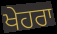
ਖੇਹਰਾ